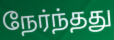
நேர்ந்தது